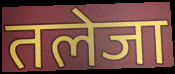
तलेजा